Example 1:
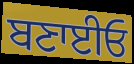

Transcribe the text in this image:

ਬਣਾਈਓ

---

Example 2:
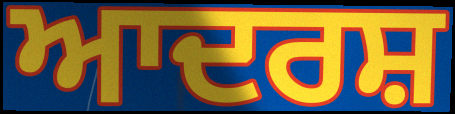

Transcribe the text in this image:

ਆਦਰਸ਼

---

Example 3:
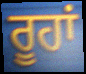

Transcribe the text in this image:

ਰੂਹਾਂ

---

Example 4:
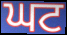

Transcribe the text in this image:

ਘਟ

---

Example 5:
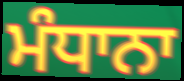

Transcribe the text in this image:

ਮੰਧਾਨਾ